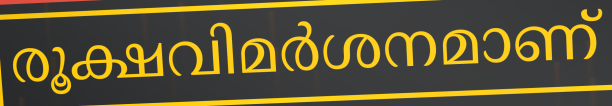
രൂക്ഷവിമർശനമാണ്